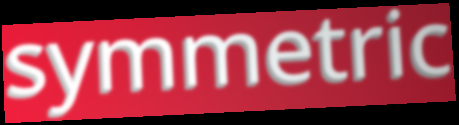
symmetric